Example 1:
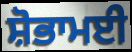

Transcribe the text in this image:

ਸ਼ੋਭਾਮਈ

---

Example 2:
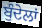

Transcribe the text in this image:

ਬੁੰਦੇਲਾਂ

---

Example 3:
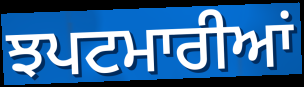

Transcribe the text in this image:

ਝਪਟਮਾਰੀਆਂ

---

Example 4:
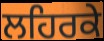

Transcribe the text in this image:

ਲਹਿਰਕੇ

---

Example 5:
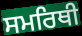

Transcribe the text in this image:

ਸਮਰਿਥੀ